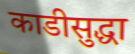
काडीसुद्धा